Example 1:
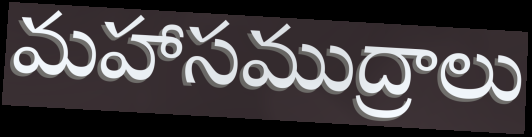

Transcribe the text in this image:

మహాసముద్రాలు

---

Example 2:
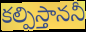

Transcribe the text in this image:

కల్పిస్తాననీ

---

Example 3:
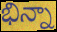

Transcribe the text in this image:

భిన్నా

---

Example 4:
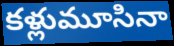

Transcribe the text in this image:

కళ్లుమూసినా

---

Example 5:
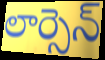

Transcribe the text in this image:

లార్సెన్